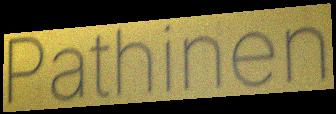
Pathinen